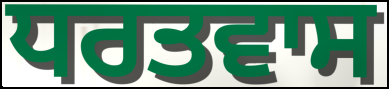
ਧਰਤਵਾਸ